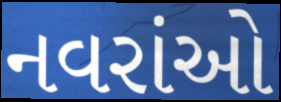
નવરાંઓ